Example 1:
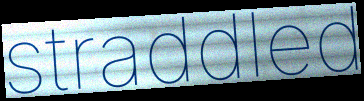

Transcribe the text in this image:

straddled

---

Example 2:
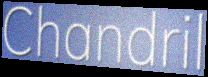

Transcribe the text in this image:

Chandril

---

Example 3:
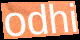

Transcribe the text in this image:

odhi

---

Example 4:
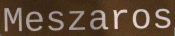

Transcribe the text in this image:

Meszaros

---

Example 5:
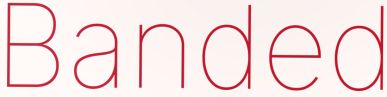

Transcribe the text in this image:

Banded